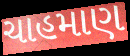
ચાહમાણ